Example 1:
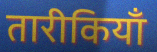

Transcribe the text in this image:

तारीकियाँ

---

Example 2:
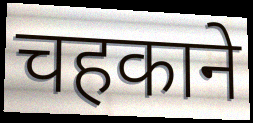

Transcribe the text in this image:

चहकाने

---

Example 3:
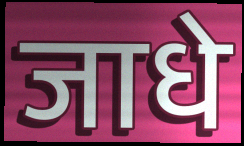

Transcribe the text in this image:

जाधे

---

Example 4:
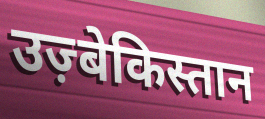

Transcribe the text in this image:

उज़्बेकिस्तान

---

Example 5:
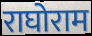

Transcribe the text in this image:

राघोराम